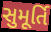
સુમૂર્તિ